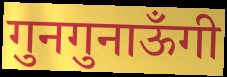
गुनगुनाऊँगी